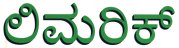
ಲಿಮರಿಕ್